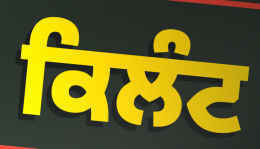
ਕਿਲੰਟ